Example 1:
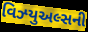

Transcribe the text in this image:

વિઝ્યુઅલ્સની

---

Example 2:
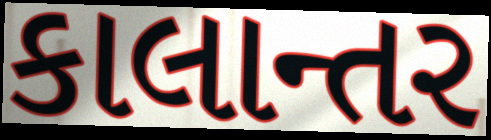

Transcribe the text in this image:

કાલાન્તર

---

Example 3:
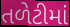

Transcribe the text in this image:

તળેટીમાં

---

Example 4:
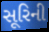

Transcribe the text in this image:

સૂરિની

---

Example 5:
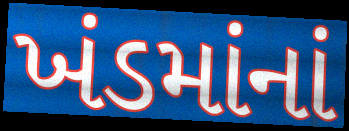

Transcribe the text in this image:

ખંડમાંનાં